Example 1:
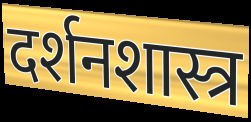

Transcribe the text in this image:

दर्शनशास्त्र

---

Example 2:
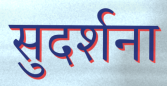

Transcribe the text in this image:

सुदर्शना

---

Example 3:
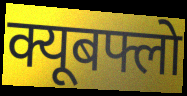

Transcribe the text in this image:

क्यूबफ्लो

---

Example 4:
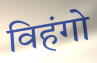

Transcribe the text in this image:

विहंगो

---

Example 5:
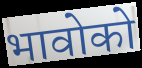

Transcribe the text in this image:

भावोको